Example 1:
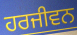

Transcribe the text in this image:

ਹਰਜੀਵਨ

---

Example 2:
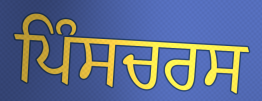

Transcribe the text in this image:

ਪਿੰਸਚਰਸ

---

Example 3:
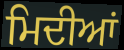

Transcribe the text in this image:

ਮਿਦੀਆਂ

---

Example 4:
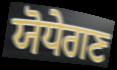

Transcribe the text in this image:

ਯੋਧੇਗਣ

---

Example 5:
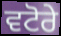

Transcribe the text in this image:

ਵਟੋਰੇ